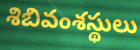
శిబివంశస్థులు